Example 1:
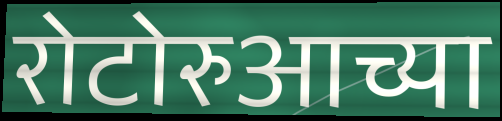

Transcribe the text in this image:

रोटोरुआच्या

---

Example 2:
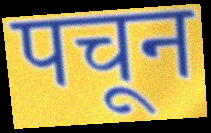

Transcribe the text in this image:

पचून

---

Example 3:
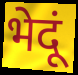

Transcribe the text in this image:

भेदूं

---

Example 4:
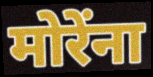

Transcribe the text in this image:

मोरेंना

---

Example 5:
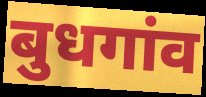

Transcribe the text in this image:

बुधगांव